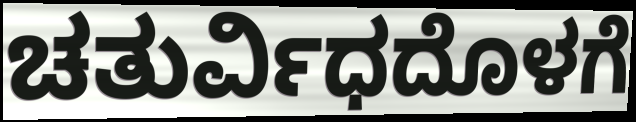
ಚತುರ್ವಿಧದೊಳಗೆ